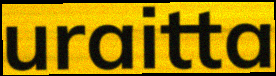
uraitta